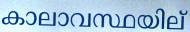
കാലാവസ്ഥയില്